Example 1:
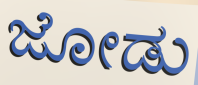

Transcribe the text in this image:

ಜೋಡು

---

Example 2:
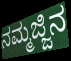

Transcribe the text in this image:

ನಮ್ಮಜ್ಜಿನ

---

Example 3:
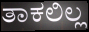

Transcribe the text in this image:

ತಾಕಲಿಲ್ಲ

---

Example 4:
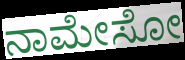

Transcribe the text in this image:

ನಾಮೇಸೋ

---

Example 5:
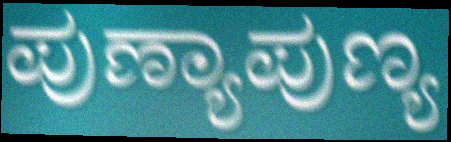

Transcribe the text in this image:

ಪುಣ್ಯಾಪುಣ್ಯ